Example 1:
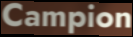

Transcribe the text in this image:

Campion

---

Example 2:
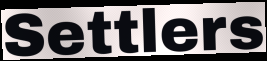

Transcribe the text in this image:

Settlers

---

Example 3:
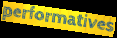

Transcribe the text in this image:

performatives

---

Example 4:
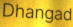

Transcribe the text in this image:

Dhangad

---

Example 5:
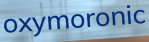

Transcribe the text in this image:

oxymoronic